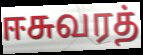
ஈசுவரத்